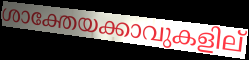
ശാക്തേയക്കാവുകളില്